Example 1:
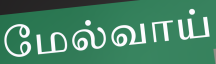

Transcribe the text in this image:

மேல்வாய்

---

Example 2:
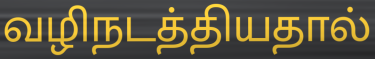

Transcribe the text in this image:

வழிநடத்தியதால்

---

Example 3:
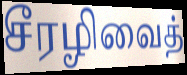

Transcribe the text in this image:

சீரழிவைத்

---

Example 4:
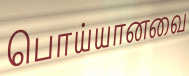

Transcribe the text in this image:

பொய்யானவை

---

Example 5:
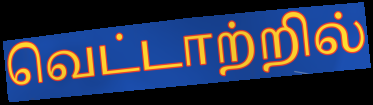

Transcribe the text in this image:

வெட்டாற்றில்